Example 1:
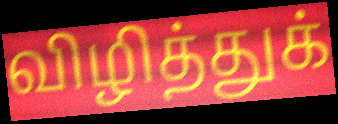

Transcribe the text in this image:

விழித்துக்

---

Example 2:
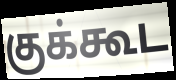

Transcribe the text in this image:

குக்கூட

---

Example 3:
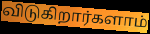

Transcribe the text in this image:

விடுகிறார்களாம்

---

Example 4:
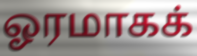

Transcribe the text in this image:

ஓரமாகக்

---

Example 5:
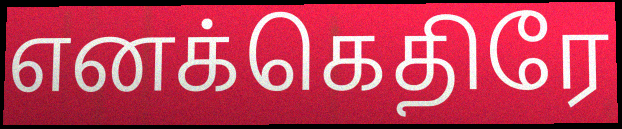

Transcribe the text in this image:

எனக்கெதிரே